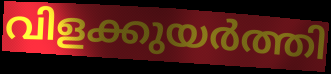
വിളക്കുയർത്തി